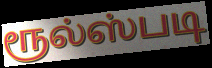
ரூல்ஸ்படி